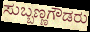
ಸುಬ್ಬಣ್ಣಗೌಡರು